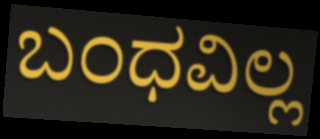
ಬಂಧವಿಲ್ಲ